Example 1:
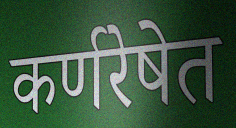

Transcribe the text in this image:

कर्णरेषेत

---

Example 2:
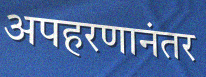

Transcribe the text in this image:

अपहरणानंतर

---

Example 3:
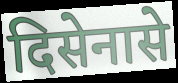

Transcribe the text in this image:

दिसेनासे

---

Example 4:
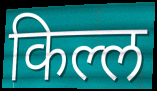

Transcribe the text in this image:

किल्ल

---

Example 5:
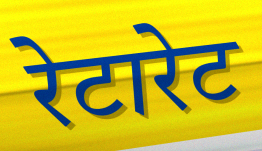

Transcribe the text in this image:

रेटारेट